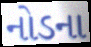
નોડના